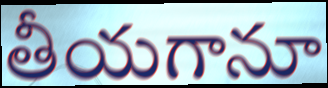
తీయగానూ